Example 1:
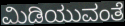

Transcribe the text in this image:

ಮಿಡಿಯುವಂತೆ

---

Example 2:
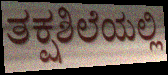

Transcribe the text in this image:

ತಕ್ಷಶಿಲೆಯಲ್ಲಿ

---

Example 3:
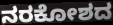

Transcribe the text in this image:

ನರಕೋಶದ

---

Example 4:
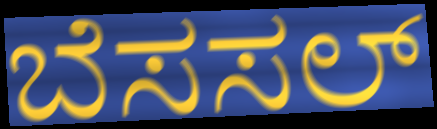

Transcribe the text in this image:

ಬೆಸಸಲ್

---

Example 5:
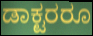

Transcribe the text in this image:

ಡಾಕ್ಟರರೂ